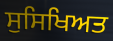
ਸੁਸਿਖਿਅਤ